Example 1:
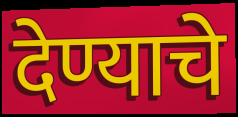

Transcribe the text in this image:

देण्याचे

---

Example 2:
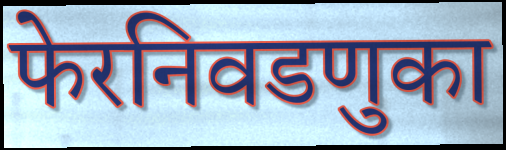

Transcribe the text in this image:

फेरनिवडणुका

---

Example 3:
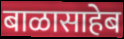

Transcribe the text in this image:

बाळासाहेब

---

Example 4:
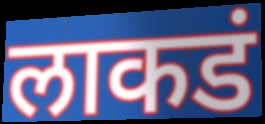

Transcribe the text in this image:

लाकडं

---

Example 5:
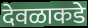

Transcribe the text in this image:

देवळाकडे